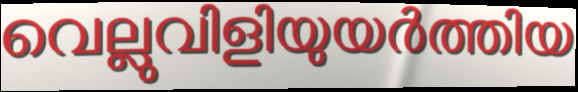
വെല്ലുവിളിയുയർത്തിയ